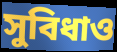
সুবিধাও